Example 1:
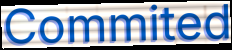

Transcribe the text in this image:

Commited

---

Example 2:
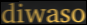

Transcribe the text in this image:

diwaso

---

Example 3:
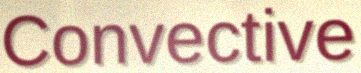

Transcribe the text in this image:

Convective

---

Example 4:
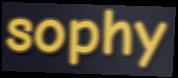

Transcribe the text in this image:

sophy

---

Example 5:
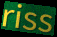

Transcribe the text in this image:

riss